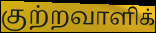
குற்றவாளிக்